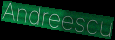
Andreescu